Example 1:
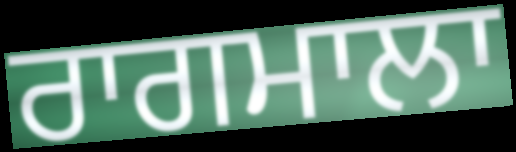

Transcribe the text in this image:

ਰਾਗਮਾਲਾ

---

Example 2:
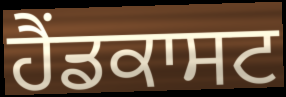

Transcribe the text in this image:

ਹੈਂਡਕਾਸਟ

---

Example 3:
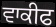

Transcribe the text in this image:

ਵਾਕੀਫ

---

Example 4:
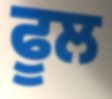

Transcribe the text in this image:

ਫੂਲ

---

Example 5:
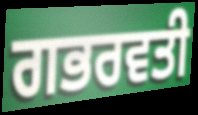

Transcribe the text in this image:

ਗਭਰਵਤੀ